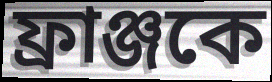
ফ্রাঞ্জকে